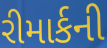
રીમાર્કની